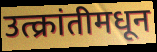
उत्क्रांतीमधून